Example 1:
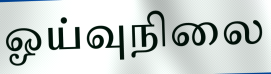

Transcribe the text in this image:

ஓய்வுநிலை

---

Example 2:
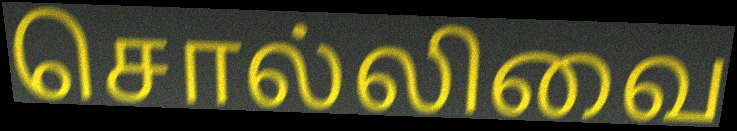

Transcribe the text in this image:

சொல்லிவை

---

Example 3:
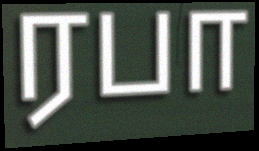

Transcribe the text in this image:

ரபா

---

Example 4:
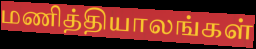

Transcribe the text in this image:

மணித்தியாலங்கள்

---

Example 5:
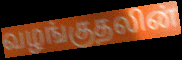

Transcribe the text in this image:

வழங்குதலின்